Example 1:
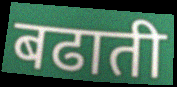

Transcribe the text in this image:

बढाती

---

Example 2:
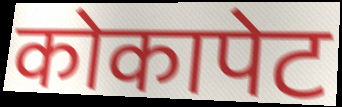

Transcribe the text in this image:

कोकापेट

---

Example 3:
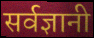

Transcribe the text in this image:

सर्वज्ञानी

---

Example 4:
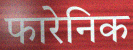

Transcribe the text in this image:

फारेनिक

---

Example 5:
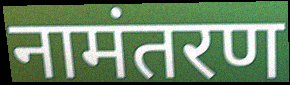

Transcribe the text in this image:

नामंतरण